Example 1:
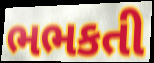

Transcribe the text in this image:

ભભકતી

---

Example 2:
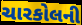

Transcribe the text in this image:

ચારકોલની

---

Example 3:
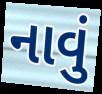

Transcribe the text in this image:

નાવું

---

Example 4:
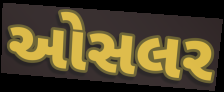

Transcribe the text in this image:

ઓસલર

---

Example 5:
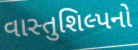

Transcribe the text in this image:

વાસ્તુશિલ્પનો